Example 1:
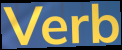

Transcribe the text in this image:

Verb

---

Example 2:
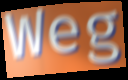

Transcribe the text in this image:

Weg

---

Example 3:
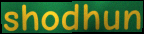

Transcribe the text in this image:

shodhun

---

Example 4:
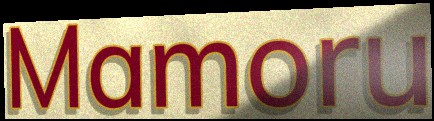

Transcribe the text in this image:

Mamoru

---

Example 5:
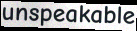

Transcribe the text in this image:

unspeakable